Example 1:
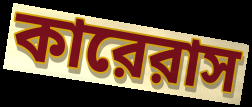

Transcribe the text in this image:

কারেরাস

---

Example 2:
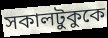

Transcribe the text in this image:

সকালটুকুকে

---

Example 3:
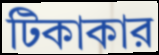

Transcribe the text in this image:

টিকাকার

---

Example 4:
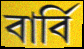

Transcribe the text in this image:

বার্বি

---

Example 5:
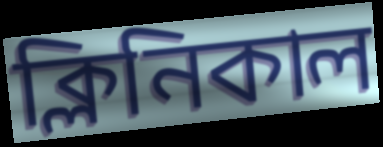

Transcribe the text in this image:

ক্লিনিকাল